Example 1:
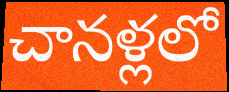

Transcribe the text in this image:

చానళ్లలో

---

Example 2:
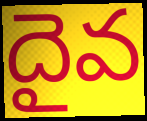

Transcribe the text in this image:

దైవ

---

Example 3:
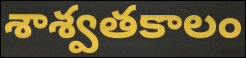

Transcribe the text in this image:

శాశ్వతకాలం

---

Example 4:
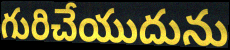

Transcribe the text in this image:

గురిచేయుదును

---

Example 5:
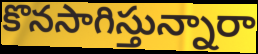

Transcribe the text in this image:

కొనసాగిస్తున్నారా